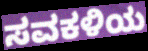
ಸವಕಳಿಯ